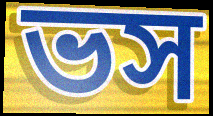
ভস